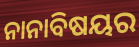
ନାନାବିଷୟର